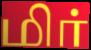
மிர்